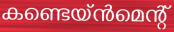
കണ്ടെയ്ൻമെന്റ്